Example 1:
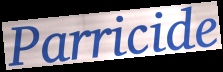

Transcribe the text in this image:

Parricide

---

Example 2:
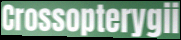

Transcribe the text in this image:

Crossopterygii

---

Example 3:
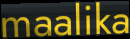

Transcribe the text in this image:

maalika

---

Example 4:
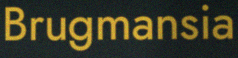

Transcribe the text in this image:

Brugmansia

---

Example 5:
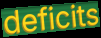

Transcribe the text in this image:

deficits